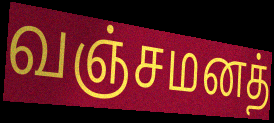
வஞ்சமனத்